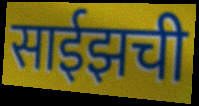
साईझची